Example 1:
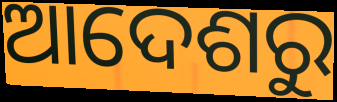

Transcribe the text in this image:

ଆଦେଶରୁ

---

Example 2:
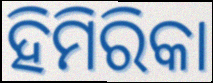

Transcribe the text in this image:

ହିମିରିକା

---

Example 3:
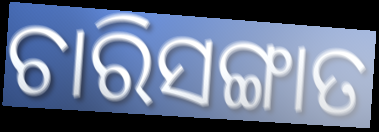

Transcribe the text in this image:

ଚାରିସଙ୍ଗାତ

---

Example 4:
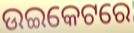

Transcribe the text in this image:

ଉଇକେଟରେ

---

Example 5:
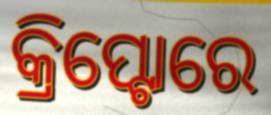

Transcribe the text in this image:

କ୍ରିପ୍ଟୋରେ